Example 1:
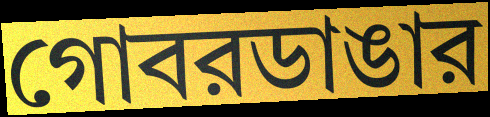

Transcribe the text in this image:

গোবরডাঙার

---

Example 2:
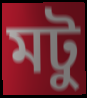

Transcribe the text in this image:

মটু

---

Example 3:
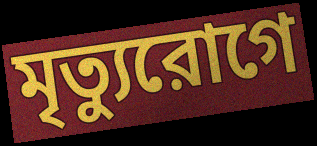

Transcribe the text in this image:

মৃত্যুরোগে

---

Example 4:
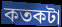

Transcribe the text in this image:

কতকটা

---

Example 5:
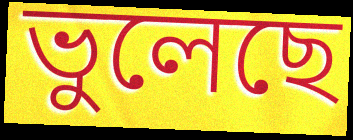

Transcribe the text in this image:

ভুলেছে